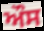
ਔਸ